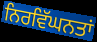
ਨਿਰਵਿੱਘਨਤਾਂ